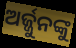
ଅର୍ଜ୍ଜୁନଙ୍କୁ